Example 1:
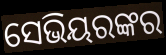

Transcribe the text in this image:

ସେଭିୟରଙ୍କର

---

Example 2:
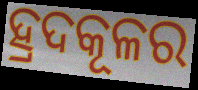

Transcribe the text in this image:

ହ୍ରଦକୂଳର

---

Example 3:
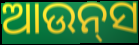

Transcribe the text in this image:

ଆଉନ୍‍ସ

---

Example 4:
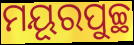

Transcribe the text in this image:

ମୟୂରପୁଚ୍ଛ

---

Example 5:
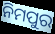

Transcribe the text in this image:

ନିମପୁର